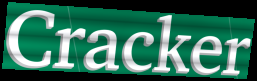
Cracker